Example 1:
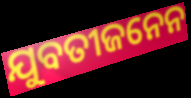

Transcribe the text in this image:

ଯୁବତୀଜନେନ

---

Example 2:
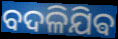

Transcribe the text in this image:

ବଦଳିଯିଵ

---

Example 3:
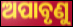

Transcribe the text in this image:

ଅପାବୃଣୁ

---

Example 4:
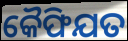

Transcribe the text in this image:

କୈଫିଯତ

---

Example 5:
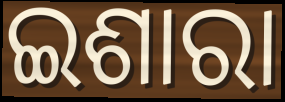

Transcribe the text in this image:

ଇଶାରା